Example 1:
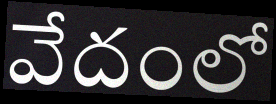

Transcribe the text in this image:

వేదంలో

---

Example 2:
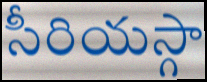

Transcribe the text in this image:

సీరియస్గా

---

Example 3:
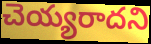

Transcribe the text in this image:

చెయ్యరాదని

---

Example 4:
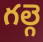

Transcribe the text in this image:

గల్గె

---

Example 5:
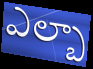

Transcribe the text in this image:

ఎల్బా